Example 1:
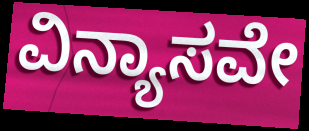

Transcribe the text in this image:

ವಿನ್ಯಾಸವೇ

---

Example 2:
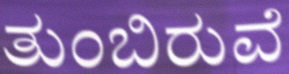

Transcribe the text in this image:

ತುಂಬಿರುವೆ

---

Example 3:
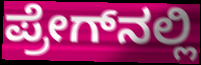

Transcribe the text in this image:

ಪ್ರೇಗ್‌ನಲ್ಲಿ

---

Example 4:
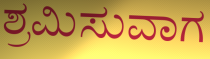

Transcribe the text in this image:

ಶ್ರಮಿಸುವಾಗ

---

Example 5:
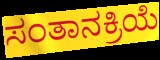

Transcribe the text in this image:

ಸಂತಾನಕ್ರಿಯೆ